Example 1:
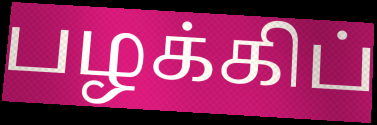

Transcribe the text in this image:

பழக்கிப்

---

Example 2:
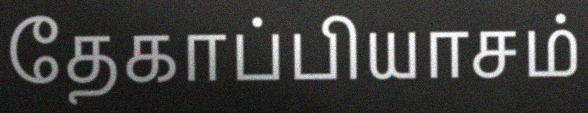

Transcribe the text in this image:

தேகாப்பியாசம்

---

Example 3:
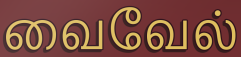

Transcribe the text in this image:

வைவேல்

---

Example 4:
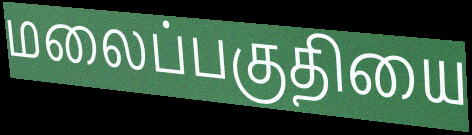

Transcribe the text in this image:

மலைப்பகுதியை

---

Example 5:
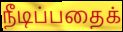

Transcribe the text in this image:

நீடிப்பதைக்